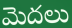
మెదలు